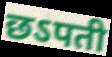
छऽपती